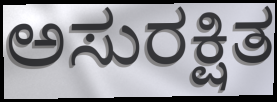
ಅಸುರಕ್ಷಿತ